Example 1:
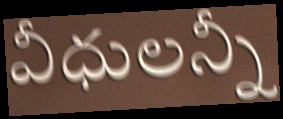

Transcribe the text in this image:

వీధులన్నీ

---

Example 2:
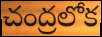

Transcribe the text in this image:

చంద్రలోక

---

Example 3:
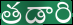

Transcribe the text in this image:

తడారి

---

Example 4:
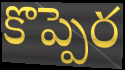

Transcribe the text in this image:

కొప్పెర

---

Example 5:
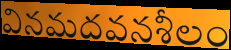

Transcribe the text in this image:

వినమదవనశీలం